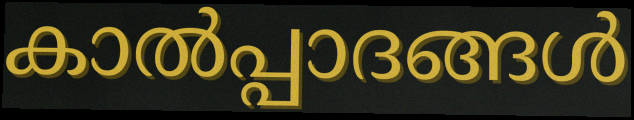
കാൽപ്പാദങ്ങൾ